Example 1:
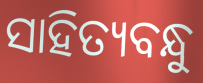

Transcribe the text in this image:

ସାହିତ୍ୟବନ୍ଧୁ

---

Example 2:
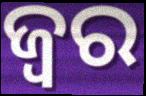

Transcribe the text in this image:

ଜ୍ଵର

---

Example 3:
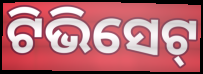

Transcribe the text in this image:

ଟିଭିସେଟ୍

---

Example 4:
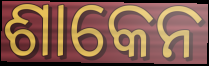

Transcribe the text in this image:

ଶାକେନ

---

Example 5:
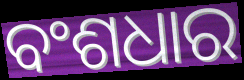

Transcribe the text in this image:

ବଂଶଧାର